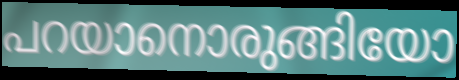
പറയാനൊരുങ്ങിയോ